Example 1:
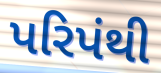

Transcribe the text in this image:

પરિપંથી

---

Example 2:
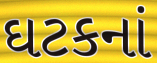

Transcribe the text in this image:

ઘટકનાં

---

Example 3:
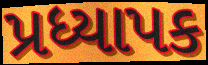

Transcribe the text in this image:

પ્રધ્યાપક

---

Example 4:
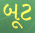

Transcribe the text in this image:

બૂટ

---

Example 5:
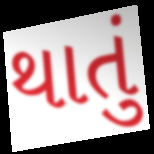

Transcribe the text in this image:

થાતું